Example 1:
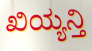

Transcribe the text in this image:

ಖಿಯ್ಯನ್ತಿ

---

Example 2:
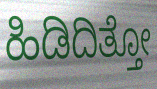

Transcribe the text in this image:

ಹಿಡಿದಿತ್ತೋ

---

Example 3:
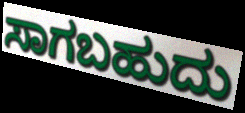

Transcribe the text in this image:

ಸಾಗಬಹುದು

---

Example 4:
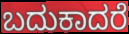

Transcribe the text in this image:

ಬದುಕಾದರೆ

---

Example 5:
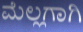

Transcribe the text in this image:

ಮೆಲ್ಲಗಾಗಿ